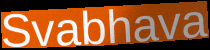
Svabhava